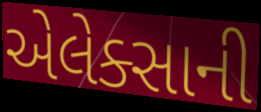
એલેક્સાની